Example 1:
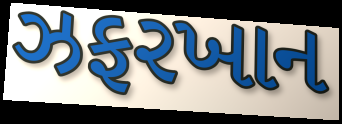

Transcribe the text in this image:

ઝફરખાન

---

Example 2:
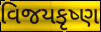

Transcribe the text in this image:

વિજયકૃષ્ણ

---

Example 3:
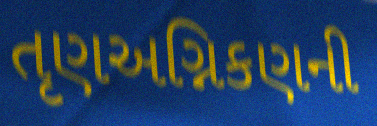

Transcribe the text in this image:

તૃણઅગ્નિકણની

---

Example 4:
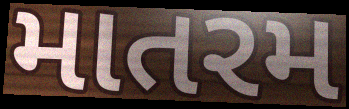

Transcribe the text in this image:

માતરમ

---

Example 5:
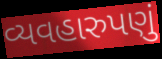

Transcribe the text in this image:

વ્યવહારુપણું